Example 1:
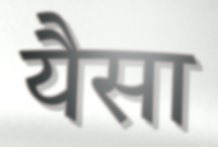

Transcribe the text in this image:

यैसा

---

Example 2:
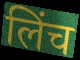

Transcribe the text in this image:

लिंच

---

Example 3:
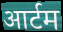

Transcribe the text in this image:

आर्टम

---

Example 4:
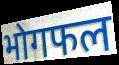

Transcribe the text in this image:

भोगफल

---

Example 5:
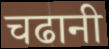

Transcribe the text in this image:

चढानी